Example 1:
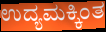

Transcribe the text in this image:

ಉದ್ಯಮಕ್ಕಿಂತ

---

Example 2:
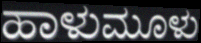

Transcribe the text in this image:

ಹಾಳುಮೂಳು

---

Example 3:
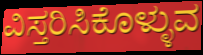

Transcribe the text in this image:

ವಿಸ್ತರಿಸಿಕೊಳ್ಳುವ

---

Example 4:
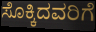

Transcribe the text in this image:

ಸೊಕ್ಕಿದವರಿಗೆ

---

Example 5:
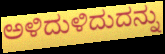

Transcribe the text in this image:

ಅಳಿದುಳಿದುದನ್ನು